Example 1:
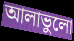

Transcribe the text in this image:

আলাভুলো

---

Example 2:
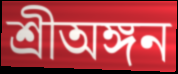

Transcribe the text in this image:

শ্রীঅঙ্গন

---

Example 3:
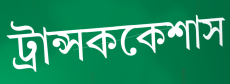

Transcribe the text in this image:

ট্রান্সককেশাস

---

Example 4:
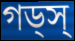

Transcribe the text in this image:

গড্স্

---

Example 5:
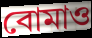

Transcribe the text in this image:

বোমাও